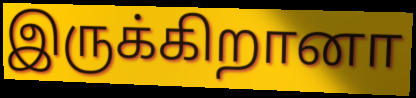
இருக்கிறானா